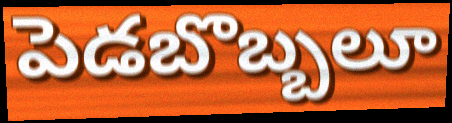
పెడబొబ్బలూ